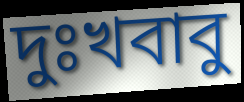
দুঃখবাবু